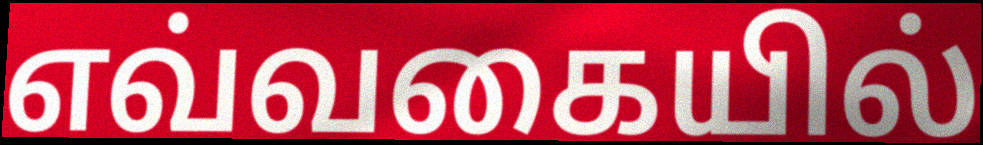
எவ்வகையில்